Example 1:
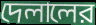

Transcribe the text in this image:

দেলালের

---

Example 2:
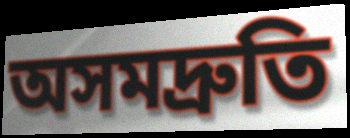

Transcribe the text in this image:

অসমদ্রুতি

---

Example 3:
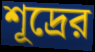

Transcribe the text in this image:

শূদ্রের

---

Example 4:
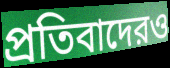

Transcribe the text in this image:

প্রতিবাদেরও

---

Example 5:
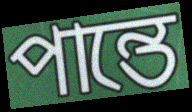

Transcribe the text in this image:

পান্তে